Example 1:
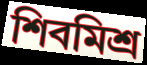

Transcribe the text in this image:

শিবমিশ্র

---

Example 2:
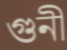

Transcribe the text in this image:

গুনী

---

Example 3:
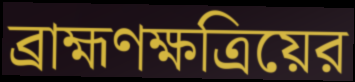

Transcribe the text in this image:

ব্রাহ্মণক্ষত্রিয়ের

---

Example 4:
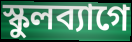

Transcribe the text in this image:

স্কুলব্যাগে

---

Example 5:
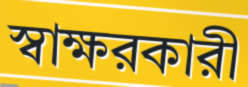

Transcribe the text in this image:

স্বাক্ষরকারী